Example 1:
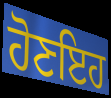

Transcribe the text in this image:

ਹੋਣਇਹ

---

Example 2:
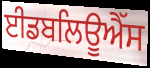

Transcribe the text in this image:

ਈਡਬਲਿਊਐੱਸ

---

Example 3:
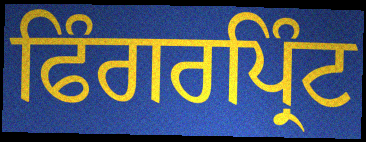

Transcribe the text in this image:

ਫਿੰਗਰਪ੍ਰਿੰਟ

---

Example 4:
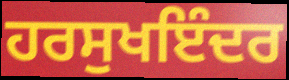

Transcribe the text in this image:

ਹਰਸੁਖਇੰਦਰ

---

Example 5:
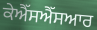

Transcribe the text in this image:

ਕੇਐੱਸਐੱਸਆਰ